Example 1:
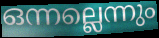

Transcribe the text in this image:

ഒന്നല്ലെന്നും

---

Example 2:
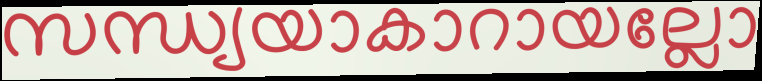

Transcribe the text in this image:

സന്ധ്യയാകാറായല്ലോ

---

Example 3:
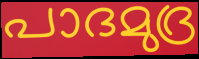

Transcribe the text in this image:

പാദമുദ്ര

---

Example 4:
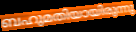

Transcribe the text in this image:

ബഹുമതിയായിരുന്നു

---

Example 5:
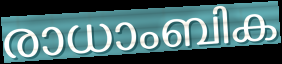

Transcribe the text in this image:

രാധാംബിക